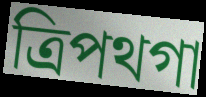
ত্রিপথগা